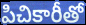
పిచికారీతో